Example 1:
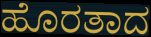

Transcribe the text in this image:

ಹೊರತಾದ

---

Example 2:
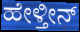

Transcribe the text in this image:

ಹೇಳ್ತೀನ್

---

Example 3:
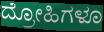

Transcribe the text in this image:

ದ್ರೋಹಿಗಳೂ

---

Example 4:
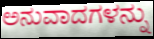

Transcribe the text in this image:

ಅನುವಾದಗಳನ್ನು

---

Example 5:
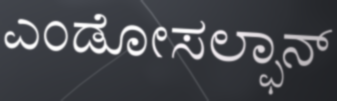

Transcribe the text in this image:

ಎಂಡೋಸಲ್ಫಾನ್